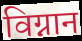
विग्नान